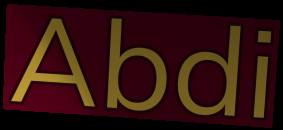
Abdi